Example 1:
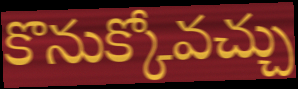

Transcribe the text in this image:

కొనుక్కోవచ్చు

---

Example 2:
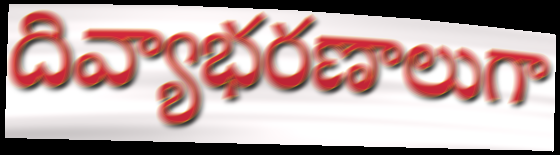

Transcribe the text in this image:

దివ్యాభరణాలుగా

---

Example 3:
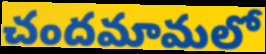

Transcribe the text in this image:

చందమామలో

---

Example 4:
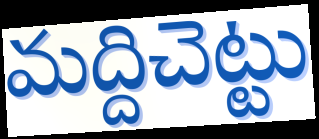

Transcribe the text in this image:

మద్దిచెట్టు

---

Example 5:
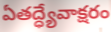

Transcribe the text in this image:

ఏతద్ధ్యేవాక్షరం